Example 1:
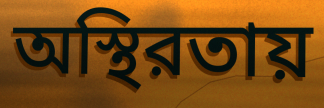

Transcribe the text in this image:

অস্থিরতায়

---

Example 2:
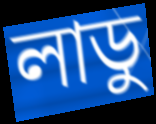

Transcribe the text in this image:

লাডু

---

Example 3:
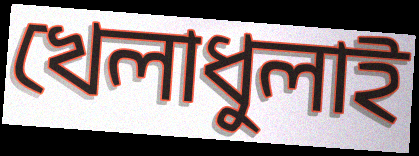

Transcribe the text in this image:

খেলাধুলাই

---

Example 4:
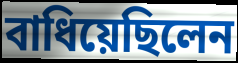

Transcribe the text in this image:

বাধিয়েছিলেন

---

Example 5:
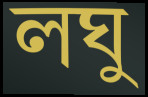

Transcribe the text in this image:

লঘু